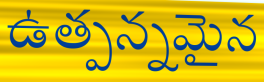
ఉత్పన్నమైన